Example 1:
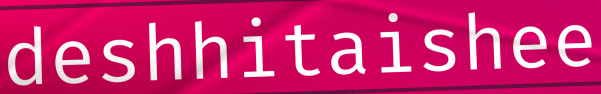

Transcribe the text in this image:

deshhitaishee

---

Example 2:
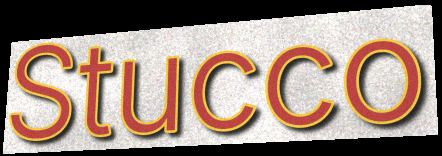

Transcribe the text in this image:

Stucco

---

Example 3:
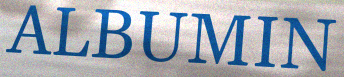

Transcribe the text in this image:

ALBUMIN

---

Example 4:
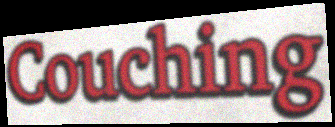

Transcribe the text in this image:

Couching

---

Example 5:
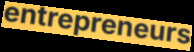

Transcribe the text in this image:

entrepreneurs